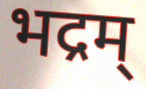
भद्रम्